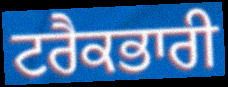
ਟਰੈਕਭਾਰੀ